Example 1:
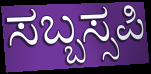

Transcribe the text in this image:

ಸಬ್ಬಸ್ಸಪಿ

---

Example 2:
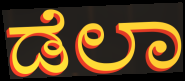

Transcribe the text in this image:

ಡೆಲಾ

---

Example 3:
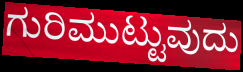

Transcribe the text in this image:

ಗುರಿಮುಟ್ಟುವುದು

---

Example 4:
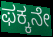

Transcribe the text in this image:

ಫಕ್ಕನೇ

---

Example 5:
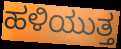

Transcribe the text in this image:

ಹಳಿಯುತ್ತ